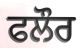
ਫਲੌਰ